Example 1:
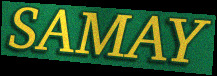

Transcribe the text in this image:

SAMAY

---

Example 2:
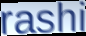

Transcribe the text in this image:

rashi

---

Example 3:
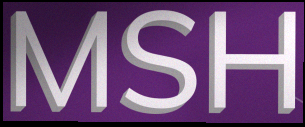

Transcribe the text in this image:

MSH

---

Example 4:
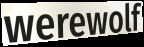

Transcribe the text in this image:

werewolf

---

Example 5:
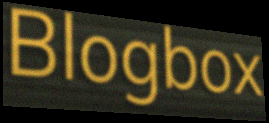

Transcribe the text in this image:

Blogbox